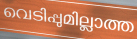
വെടിപ്പുമില്ലാത്ത